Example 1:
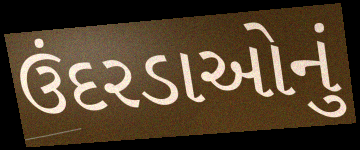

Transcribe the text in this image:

ઉંદરડાઓનું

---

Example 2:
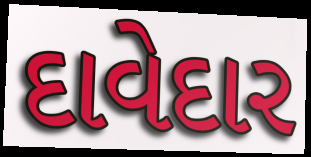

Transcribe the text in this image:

દાવેદાર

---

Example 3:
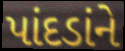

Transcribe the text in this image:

પાંદડાંને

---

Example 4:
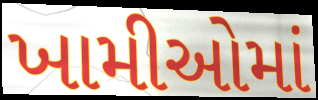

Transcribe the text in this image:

ખામીઓમાં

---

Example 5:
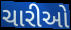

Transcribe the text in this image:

ચારીઓ